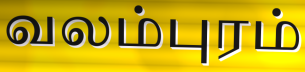
வலம்புரம்